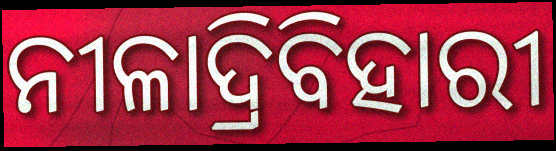
ନୀଳାଦ୍ରିବିହାରୀ